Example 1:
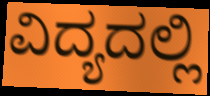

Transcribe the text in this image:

ವಿದ್ಯದಲ್ಲಿ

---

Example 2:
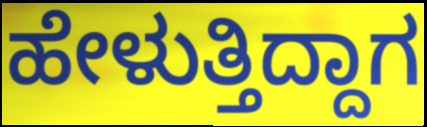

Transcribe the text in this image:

ಹೇಳುತ್ತಿದ್ದಾಗ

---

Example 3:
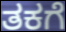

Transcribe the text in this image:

ತಕಗೆ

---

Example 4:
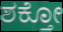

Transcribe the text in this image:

ಶಕ್ತೋ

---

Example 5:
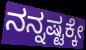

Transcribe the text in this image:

ನನ್ನಷ್ಟಕ್ಕೇ